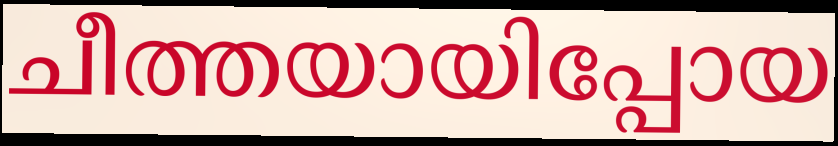
ചീത്തയായിപ്പോയ